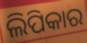
ଲିପିକାର